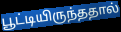
பூட்டியிருந்ததால்